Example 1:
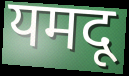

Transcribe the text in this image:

यमदू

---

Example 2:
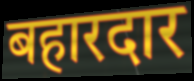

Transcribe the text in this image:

बहारदार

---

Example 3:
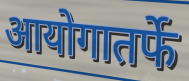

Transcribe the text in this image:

आयोगातर्फे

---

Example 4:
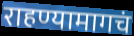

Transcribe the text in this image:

राहण्यामागचं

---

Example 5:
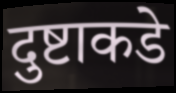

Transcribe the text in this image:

दुष्टाकडे